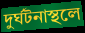
দুর্ঘটনাস্থলে